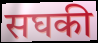
सघकी